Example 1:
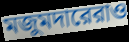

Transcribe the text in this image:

মজুমদারেরাও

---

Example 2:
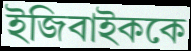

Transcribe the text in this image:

ইজিবাইককে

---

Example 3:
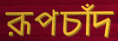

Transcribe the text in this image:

রূপচাঁদ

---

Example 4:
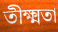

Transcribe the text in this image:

তীক্ষ্মতা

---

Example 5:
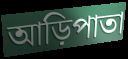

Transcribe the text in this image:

আড়িপাতা